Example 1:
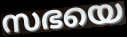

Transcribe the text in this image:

സഭയെ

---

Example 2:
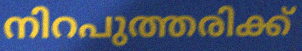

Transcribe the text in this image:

നിറപുത്തരിക്ക്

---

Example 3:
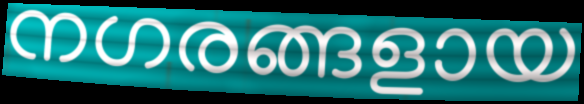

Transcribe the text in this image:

നഗരങ്ങളായ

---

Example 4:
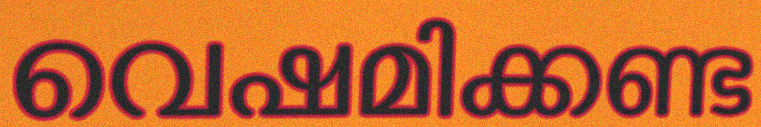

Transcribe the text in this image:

വെഷമിക്കണ്ട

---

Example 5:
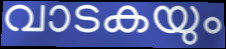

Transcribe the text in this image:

വാടകയും